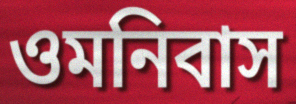
ওমনিবাস